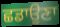
ਛਡਾਉਣਾ